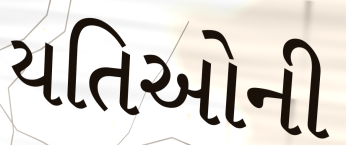
યતિઓની